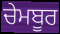
ਚੇਮਬੂਰ